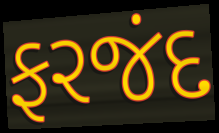
ફરજંદ